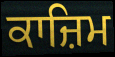
ਕਾਜ਼ਿਮ